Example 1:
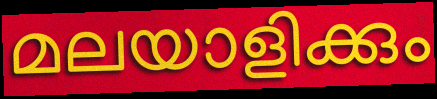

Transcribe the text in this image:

മലയാളിക്കും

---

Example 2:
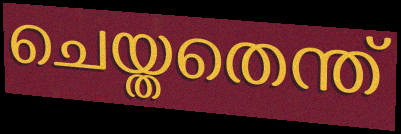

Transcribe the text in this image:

ചെയ്തതെന്ത്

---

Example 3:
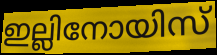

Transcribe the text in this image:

ഇല്ലിനോയിസ്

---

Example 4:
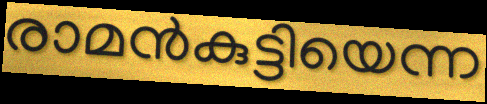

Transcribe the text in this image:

രാമൻകുട്ടിയെന്ന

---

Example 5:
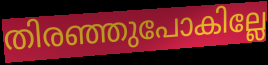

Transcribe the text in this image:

തിരഞ്ഞുപോകില്ലേ